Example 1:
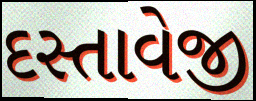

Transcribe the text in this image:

દસ્તાવેજી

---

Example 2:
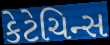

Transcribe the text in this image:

કેટેચિન્સ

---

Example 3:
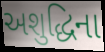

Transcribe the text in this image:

અશુદ્ધિના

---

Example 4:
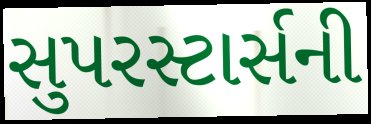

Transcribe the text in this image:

સુપરસ્ટાર્સની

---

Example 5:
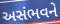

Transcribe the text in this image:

અસંભવને